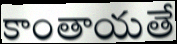
కాంతాయతే